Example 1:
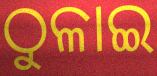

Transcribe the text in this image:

ଠୁଳାଇ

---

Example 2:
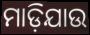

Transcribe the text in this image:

ମାଡ଼ିଯାଉ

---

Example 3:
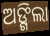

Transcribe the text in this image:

ଅଙ୍ଗିଲା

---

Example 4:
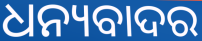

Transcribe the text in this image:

ଧନ୍ୟବାଦର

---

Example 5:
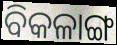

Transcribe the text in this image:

ବିକଳାଙ୍ଗ